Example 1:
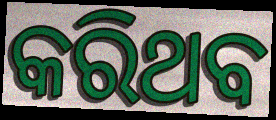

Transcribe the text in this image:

କରିଥବ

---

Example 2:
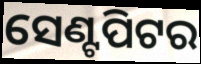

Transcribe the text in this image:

ସେଣ୍ଟପିଟର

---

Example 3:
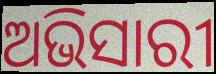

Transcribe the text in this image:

ଅଭିସାରୀ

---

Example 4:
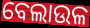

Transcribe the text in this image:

ବେଲାଉଳ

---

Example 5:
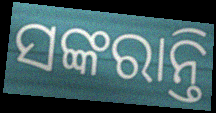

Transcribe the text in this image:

ସଙ୍କରାନ୍ତି